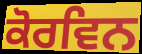
ਕੋਰਵਿਨ